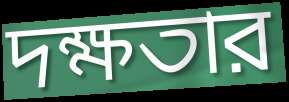
দক্ষতার